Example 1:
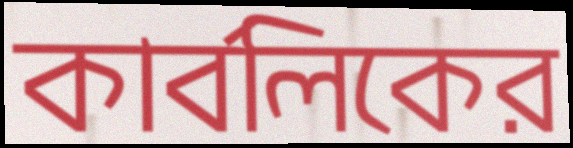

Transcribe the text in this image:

কার্বলিকের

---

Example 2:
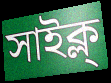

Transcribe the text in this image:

সাইক্ল্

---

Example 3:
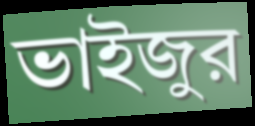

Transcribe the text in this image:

ভাইজুর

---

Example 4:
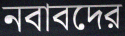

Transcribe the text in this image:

নবাবদের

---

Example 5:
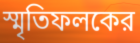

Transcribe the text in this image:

স্মৃতিফলকের